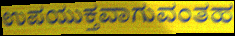
ಉಪಯುಕ್ತವಾಗುವಂತಹ